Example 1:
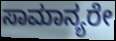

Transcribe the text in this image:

ಸಾಮಾನ್ಯರೇ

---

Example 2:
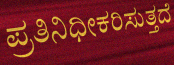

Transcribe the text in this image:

ಪ್ರತಿನಿಧೀಕರಿಸುತ್ತದೆ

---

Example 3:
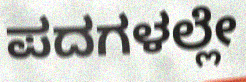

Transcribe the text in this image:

ಪದಗಳಲ್ಲೇ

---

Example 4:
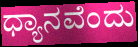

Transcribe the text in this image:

ಧ್ಯಾನವೆಂದು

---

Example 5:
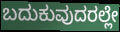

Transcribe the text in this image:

ಬದುಕುವುದರಲ್ಲೇ